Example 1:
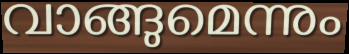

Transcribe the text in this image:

വാങ്ങുമെന്നും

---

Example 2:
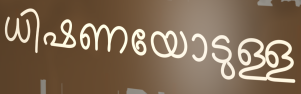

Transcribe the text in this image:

ധിഷണയോടുള്ള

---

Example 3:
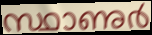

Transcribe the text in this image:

സ്ഥാണുർ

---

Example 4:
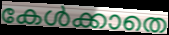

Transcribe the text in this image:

കേൾക്കാതെ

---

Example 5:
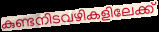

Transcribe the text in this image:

കുണ്ടനിടവഴികളിലേക്ക്